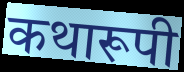
कथारूपी